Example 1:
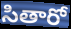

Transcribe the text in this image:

సితారో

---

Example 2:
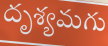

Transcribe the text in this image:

దృశ్యమగు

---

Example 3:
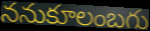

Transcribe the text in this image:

ననుకూలంబగు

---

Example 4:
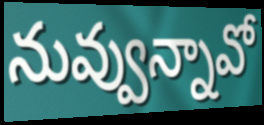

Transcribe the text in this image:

నువ్వున్నావో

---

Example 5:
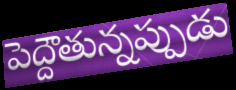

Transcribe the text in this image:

పెద్దౌతున్నప్పుడు